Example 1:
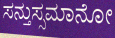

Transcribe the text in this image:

ಸನ್ತುಸ್ಸಮಾನೋ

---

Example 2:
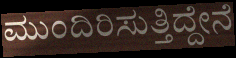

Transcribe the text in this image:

ಮುಂದಿರಿಸುತ್ತಿದ್ದೇನೆ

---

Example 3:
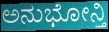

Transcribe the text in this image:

ಅನುಭೋನ್ತಿ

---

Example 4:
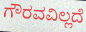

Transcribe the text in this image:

ಗೌರವವಿಲ್ಲದೆ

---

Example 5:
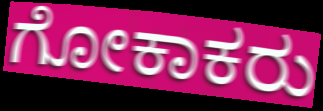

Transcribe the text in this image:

ಗೋಕಾಕರು